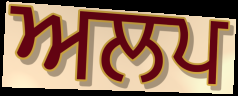
ਅਲਪ